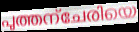
പുത്തന്ചേരിയെ